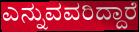
ಎನ್ನುವವರಿದ್ದಾರೆ